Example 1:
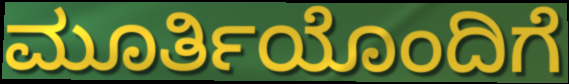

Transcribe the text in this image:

ಮೂರ್ತಿಯೊಂದಿಗೆ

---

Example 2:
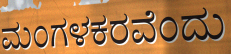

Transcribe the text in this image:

ಮಂಗಳಕರವೆಂದು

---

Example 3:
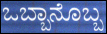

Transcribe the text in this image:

ಒಬ್ಬಾನೊಬ್ಬ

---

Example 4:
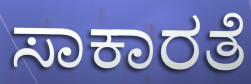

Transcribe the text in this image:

ಸಾಕಾರತೆ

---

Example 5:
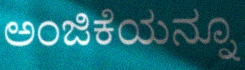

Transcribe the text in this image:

ಅಂಜಿಕೆಯನ್ನೂ